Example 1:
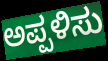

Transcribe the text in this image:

ಅಪ್ಪಳಿಸು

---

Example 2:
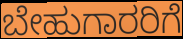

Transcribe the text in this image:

ಬೇಹುಗಾರರಿಗೆ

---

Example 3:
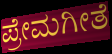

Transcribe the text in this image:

ಪ್ರೇಮಗೀತೆ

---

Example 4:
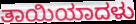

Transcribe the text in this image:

ತಾಯಿಯಾದಳು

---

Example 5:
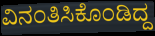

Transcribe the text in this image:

ವಿನಂತಿಸಿಕೊಂಡಿದ್ದ